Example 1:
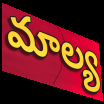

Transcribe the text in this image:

మాల్య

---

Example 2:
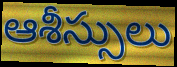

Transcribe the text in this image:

ఆశీస్సులు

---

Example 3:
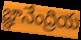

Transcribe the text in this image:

జ్ఞానేంద్రియ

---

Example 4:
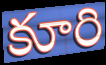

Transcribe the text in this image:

కూరి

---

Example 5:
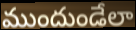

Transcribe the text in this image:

ముందుండేలా